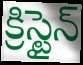
క్రిస్టైన్